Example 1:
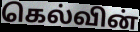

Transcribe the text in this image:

கெல்வின்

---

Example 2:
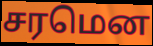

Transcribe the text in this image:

சரமென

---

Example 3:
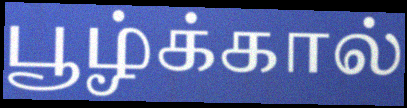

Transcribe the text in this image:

பூழ்க்கால்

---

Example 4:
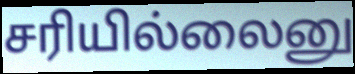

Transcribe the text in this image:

சரியில்லைனு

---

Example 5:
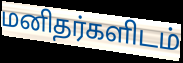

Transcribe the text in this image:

மனிதர்களிடம்